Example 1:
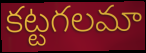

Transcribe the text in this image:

కట్టగలమా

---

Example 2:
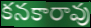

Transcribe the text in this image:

కనకారావు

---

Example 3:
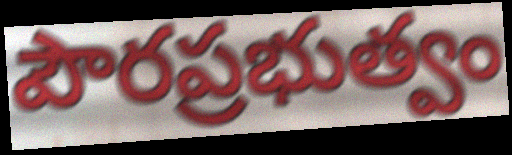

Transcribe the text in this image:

పౌరప్రభుత్వం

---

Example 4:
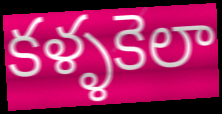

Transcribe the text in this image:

కళ్ళకెలా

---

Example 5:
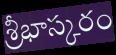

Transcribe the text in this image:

శ్రీభాస్కరం